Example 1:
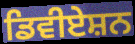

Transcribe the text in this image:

ਡਿਵੀਏਸ਼ਨ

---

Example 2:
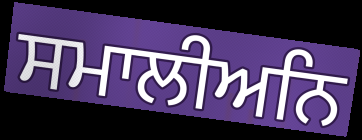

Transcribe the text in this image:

ਸਮਾਲੀਅਨਿ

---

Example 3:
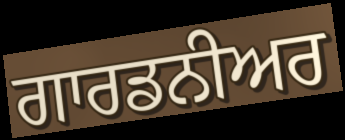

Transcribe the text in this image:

ਗਾਰਡਨੀਅਰ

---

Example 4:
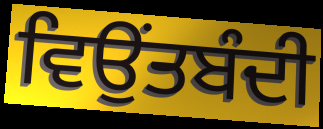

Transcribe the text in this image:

ਵਿਉਂਤਬੰਦੀ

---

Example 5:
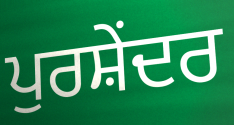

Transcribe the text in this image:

ਪੁਰਸ਼ੇਂਦਰ